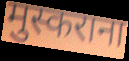
मुस्कराना